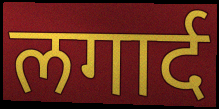
लगार्द